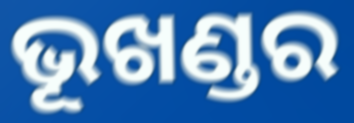
ଭୂଖଣ୍ଡର